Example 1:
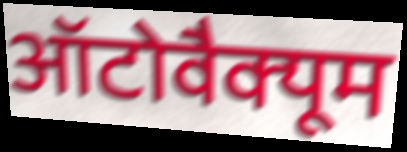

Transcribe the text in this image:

ऑटोवैक्यूम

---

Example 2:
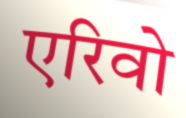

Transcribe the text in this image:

एरिवो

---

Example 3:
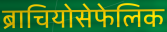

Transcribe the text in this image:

ब्राचियोसेफेलिक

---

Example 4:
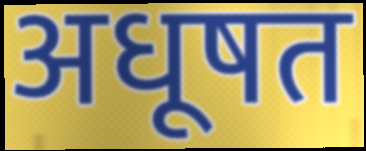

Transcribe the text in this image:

अधूषत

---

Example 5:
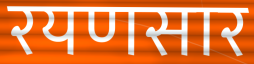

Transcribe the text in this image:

रयणसार